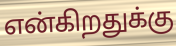
என்கிறதுக்கு